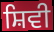
ਸ਼ਿਵੀ